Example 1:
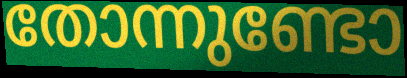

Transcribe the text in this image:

തോന്നുണ്ടോ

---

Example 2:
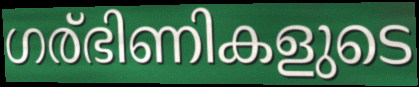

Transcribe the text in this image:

ഗര്ഭിണികളുടെ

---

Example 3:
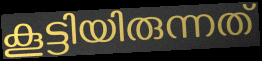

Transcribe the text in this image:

കൂട്ടിയിരുന്നത്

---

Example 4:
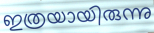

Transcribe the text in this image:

ഇത്രയായിരുന്നു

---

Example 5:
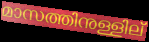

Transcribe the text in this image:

മാസത്തിനുള്ളില്